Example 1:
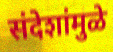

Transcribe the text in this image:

संदेशांमुळे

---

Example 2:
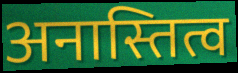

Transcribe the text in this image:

अनास्तित्व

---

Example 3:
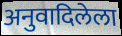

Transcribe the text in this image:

अनुवादिलेला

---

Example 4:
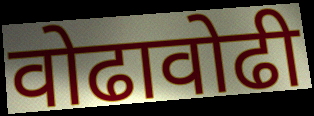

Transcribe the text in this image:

वोढावोढी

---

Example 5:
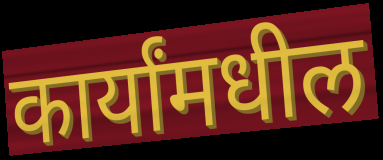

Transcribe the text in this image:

कार्यांमधील